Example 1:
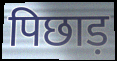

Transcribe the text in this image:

पिछाड़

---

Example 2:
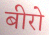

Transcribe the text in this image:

बीरो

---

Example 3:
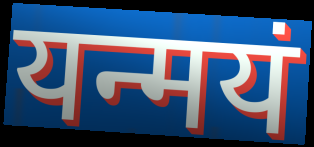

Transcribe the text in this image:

यन्मयं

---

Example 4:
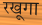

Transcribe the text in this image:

रखूगा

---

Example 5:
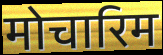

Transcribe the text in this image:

मोचारिम